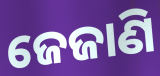
ଜେଜାଣି